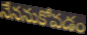
నేననుకోవడం